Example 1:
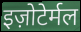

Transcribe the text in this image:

इज़ोटेर्मल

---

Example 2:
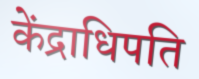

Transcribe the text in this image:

केंद्राधिपति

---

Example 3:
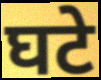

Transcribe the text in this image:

घटे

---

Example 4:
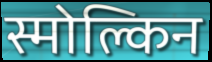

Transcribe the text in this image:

स्मोल्किन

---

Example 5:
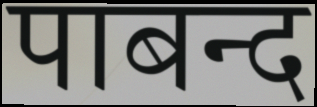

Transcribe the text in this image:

पाबन्द